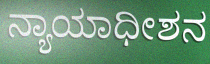
ನ್ಯಾಯಾಧೀಶನ